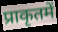
प्राकृतमें